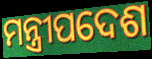
ମନ୍ତ୍ରୀପଦେଶ